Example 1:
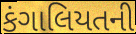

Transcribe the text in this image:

કંગાલિયતની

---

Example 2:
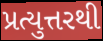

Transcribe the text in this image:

પ્રત્યુત્તરથી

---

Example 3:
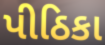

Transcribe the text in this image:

પીઠિકા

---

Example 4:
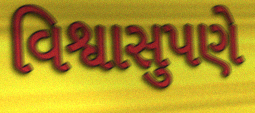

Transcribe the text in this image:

વિશ્વાસુપણે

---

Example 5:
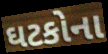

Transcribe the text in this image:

ઘટકોના